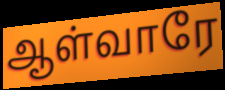
ஆள்வாரே